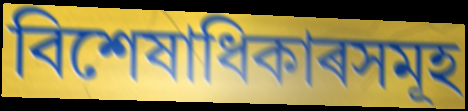
বিশেষাধিকাৰসমূহ